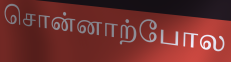
சொன்னாற்போல